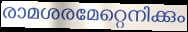
രാമശരമേറ്റെനിക്കും